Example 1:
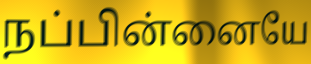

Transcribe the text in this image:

நப்பின்னையே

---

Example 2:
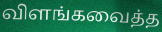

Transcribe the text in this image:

விளங்கவைத்த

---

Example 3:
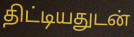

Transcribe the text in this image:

திட்டியதுடன்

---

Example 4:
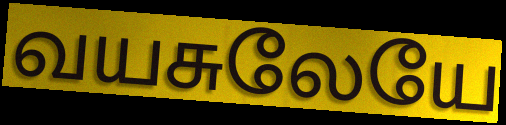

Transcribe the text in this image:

வயசுலேயே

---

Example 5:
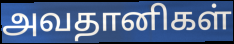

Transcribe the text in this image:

அவதானிகள்